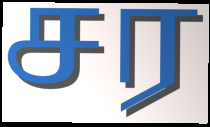
சர